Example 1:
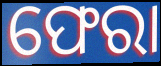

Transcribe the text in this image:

ଫେରା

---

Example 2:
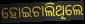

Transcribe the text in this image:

ହୋଇଚାଲିଥିଲେ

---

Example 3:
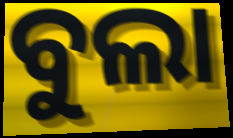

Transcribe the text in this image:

ବୁଲା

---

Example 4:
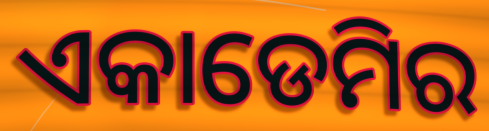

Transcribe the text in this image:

ଏକାଡେମିର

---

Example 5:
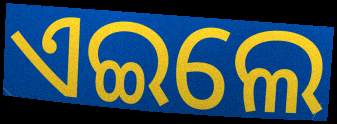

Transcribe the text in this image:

ଏଇଲେ